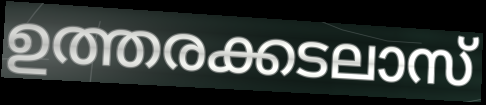
ഉത്തരക്കടലാസ്